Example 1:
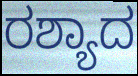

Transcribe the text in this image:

ರಶ್ಯಾದ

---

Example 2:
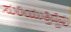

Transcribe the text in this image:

ಸುರಿಯುತ್ತಿದ್ದೆವು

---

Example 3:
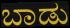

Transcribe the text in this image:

ಬಾಡು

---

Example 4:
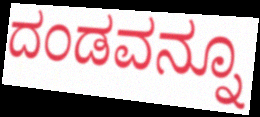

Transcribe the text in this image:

ದಂಡವನ್ನೂ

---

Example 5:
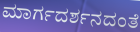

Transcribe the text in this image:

ಮಾರ್ಗದರ್ಶನದಂತೆ